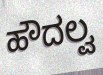
ಹೌದಲ್ವ